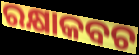
ରକ୍ଷାକବଚ